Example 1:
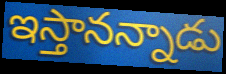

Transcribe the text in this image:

ఇస్తానన్నాడు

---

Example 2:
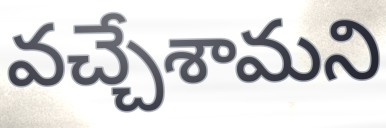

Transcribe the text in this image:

వచ్చేశామని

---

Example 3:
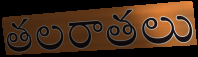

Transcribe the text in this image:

తలరాతలు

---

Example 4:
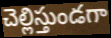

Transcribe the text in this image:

చెల్లిస్తుండగా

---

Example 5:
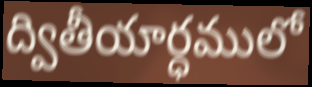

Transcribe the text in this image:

ద్వితీయార్ధములో